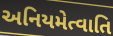
અનિયમેત્વાતિ